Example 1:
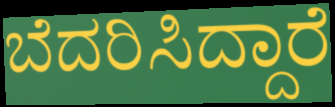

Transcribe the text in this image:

ಬೆದರಿಸಿದ್ದಾರೆ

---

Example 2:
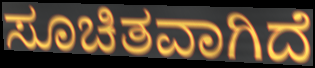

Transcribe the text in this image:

ಸೂಚಿತವಾಗಿದೆ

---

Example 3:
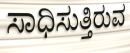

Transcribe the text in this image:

ಸಾಧಿಸುತ್ತಿರುವ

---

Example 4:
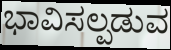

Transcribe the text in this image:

ಭಾವಿಸಲ್ಪಡುವ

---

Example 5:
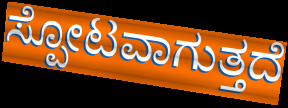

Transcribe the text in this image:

ಸ್ಪೋಟವಾಗುತ್ತದೆ